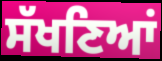
ਸੱਖਣਿਆਂ